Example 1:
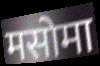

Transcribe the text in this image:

मसोमा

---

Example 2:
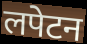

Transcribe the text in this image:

लपेटन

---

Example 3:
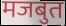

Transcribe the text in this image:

मजबुत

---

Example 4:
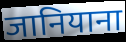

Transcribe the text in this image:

जानियाना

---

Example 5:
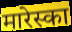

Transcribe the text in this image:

मारेस्का